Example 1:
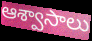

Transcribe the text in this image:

ఆశ్వాసాలు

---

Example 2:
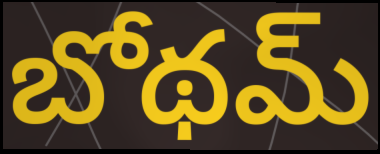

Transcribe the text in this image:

బోథమ్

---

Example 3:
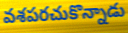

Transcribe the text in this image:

వశపరచుకొన్నాడు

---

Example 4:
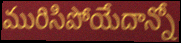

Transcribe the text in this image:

మురిసిపోయేదాన్నో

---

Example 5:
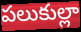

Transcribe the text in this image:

పలుకుల్లా